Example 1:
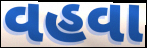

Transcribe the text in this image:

વહવા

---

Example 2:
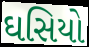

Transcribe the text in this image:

ઘસિયો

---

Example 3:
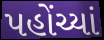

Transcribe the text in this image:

પહોંચ્યાં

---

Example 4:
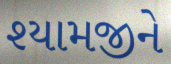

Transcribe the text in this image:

શ્યામજીને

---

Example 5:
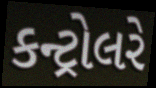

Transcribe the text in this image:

કન્ટ્રોલરે